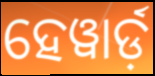
ହେୱାର୍ଡ଼